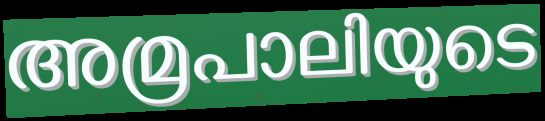
അമ്രപാലിയുടെ